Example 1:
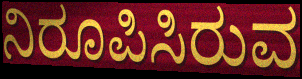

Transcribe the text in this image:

ನಿರೂಪಿಸಿರುವ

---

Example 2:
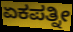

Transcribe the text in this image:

ಏಕಪತ್ನೀ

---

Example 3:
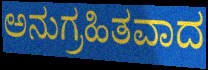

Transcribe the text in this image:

ಅನುಗ್ರಹಿತವಾದ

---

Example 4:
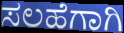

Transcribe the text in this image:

ಸಲಹೆಗಾಗಿ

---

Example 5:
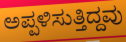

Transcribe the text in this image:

ಅಪ್ಪಳಿಸುತ್ತಿದ್ದವು